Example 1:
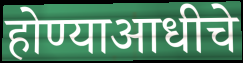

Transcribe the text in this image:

होण्याआधीचे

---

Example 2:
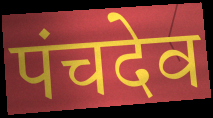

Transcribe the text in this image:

पंचदेव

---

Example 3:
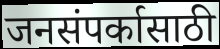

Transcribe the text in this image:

जनसंपर्कासाठी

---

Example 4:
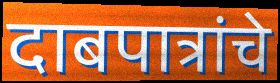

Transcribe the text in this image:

दाबपात्रांचे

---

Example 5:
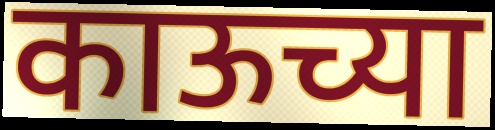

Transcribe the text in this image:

काऊच्या